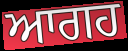
ਆਗਹ